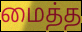
மைத்த